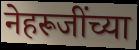
नेहरूजींच्या